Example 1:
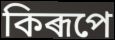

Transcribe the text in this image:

কিৰূপে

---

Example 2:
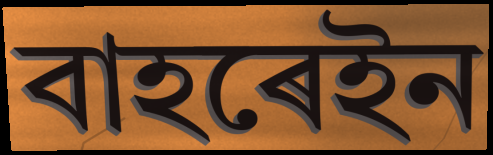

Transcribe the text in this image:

বাহৰেইন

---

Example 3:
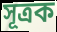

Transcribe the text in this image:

সূত্ৰক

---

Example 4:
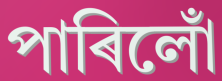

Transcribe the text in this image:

পাৰিলোঁ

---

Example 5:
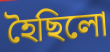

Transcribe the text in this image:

হৈছিলো